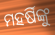
ମହର୍ଷିଙ୍କୁ